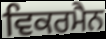
ਵਿਕਰਮੈਨ